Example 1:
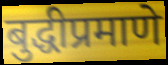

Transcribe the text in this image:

बुद्धीप्रमाणे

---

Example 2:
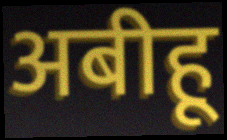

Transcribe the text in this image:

अबीहू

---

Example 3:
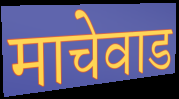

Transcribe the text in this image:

माचेवाड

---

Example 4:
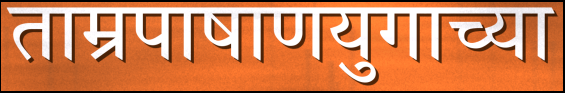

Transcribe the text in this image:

ताम्रपाषाणयुगाच्या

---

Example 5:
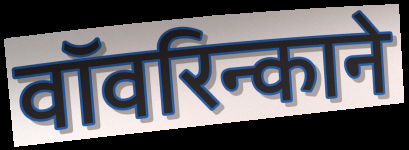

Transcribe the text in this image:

वॉवरिन्काने